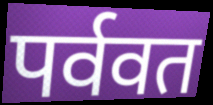
पर्ववत